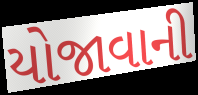
યોજાવાની